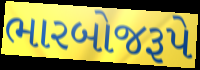
ભારબોજરૂપે